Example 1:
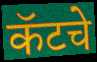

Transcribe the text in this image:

कॅटचे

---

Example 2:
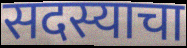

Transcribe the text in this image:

सदस्याचा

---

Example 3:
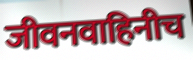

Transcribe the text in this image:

जीवनवाहिनीच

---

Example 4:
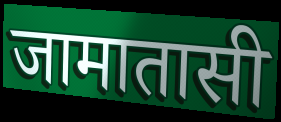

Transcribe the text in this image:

जामातासी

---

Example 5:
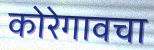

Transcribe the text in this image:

कोरेगावचा